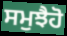
ਸਮੁਝੈਹੋ